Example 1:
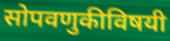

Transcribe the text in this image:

सोपवणुकीविषयी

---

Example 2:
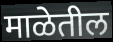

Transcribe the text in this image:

माळेतील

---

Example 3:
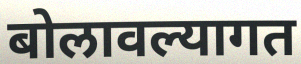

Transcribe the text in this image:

बोलावल्यागत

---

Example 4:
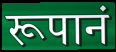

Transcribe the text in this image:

रूपानं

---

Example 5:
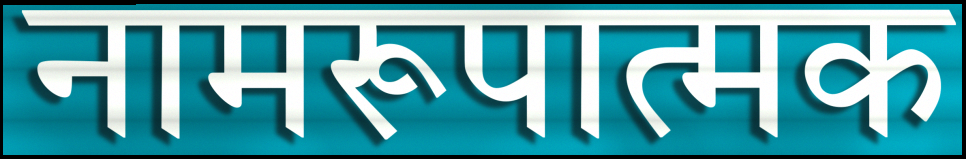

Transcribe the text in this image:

नामरूपात्मक